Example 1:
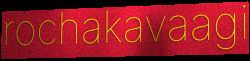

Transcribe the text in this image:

rochakavaagi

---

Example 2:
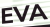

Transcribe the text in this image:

EVA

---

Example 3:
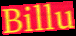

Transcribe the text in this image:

Billu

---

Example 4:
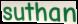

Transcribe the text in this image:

suthan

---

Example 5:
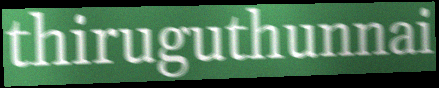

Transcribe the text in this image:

thiruguthunnai